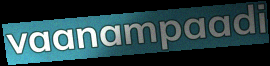
vaanampaadi